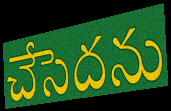
చేసెదను